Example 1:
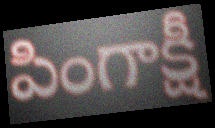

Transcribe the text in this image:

పింగాక్షీ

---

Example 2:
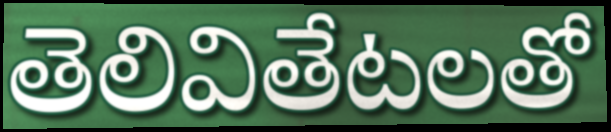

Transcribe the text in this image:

తెలివితేటలతో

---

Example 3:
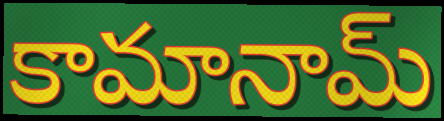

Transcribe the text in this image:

కామానామ్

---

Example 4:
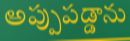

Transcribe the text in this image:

అప్పుపడ్డాను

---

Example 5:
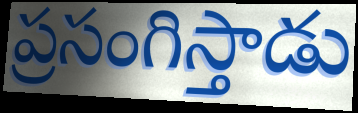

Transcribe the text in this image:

ప్రసంగిస్తాడు